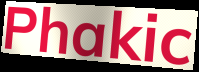
Phakic